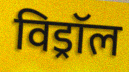
विड्रॉल